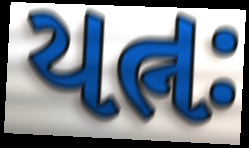
યત્નઃ